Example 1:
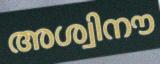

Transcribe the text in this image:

അശ്വിനൗ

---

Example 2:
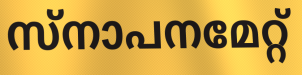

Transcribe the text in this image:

സ്നാപനമേറ്റ്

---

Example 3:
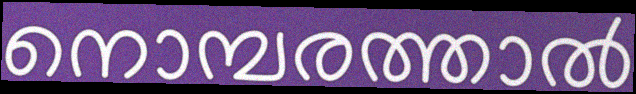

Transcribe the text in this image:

നൊമ്പരത്താൽ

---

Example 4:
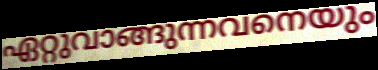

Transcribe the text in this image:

ഏറ്റുവാങ്ങുന്നവനെയും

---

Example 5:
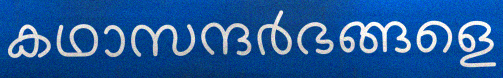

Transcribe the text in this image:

കഥാസന്ദർഭങ്ങളെ